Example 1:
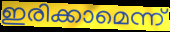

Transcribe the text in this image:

ഇരിക്കാമെന്ന്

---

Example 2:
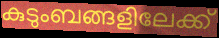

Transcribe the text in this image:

കുടുംബങ്ങളിലേക്ക്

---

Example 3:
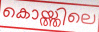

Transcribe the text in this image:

കൊയ്ത്തിലെ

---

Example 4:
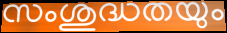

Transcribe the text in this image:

സംശുദ്ധതയും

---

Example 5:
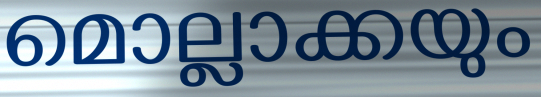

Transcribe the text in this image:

മൊല്ലാക്കയും